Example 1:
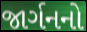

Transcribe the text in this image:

જાર્ગનનો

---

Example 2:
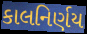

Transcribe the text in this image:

કાલનિર્ણય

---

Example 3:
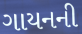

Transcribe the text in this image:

ગાયનની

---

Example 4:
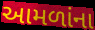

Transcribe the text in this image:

આમળાંના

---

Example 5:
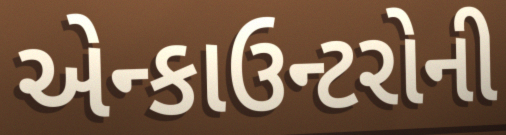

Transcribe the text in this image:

એન્કાઉન્ટરોની